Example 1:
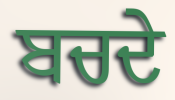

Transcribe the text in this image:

ਬਚਦੇ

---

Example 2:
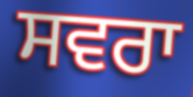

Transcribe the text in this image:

ਸਵਰਾ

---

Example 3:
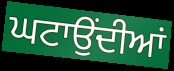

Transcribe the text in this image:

ਘਟਾਉਂਦੀਆਂ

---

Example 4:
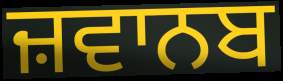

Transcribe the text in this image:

ਜ਼ਵਾਨਬ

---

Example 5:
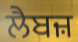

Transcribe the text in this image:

ਲੈਬਜ਼